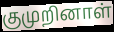
குமுறினாள்